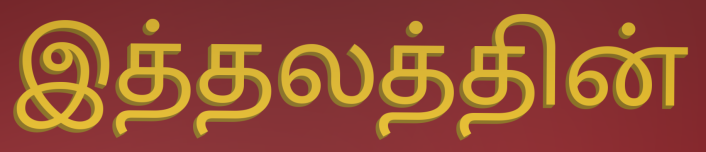
இத்தலத்தின்